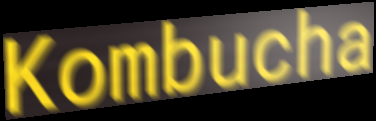
Kombucha